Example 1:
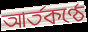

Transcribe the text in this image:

আর্তকণ্ঠে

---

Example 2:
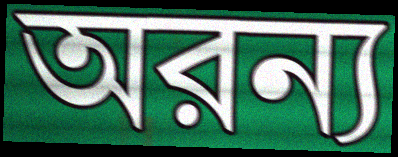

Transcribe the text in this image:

অরন্য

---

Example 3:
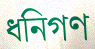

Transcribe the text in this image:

ধনিগণ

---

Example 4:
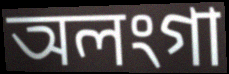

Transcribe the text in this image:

অলংগা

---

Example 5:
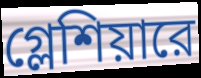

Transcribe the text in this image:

গ্লেশিয়ারে